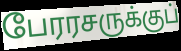
பேரரசருக்குப்